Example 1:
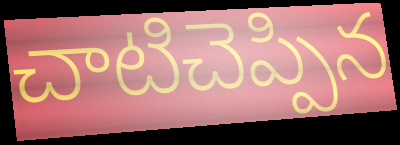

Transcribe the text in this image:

చాటిచెప్పిన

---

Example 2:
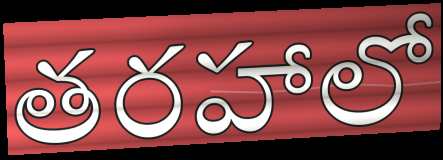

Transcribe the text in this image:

తరహాలో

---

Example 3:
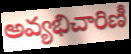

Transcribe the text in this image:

అవ్యభిచారిణీ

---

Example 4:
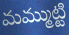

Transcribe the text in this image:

మమ్ముట్టి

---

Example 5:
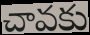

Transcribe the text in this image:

చావకు